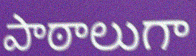
పాఠాలుగా